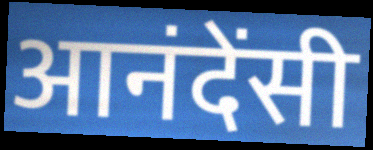
आनंदेंसी